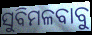
ସୁବିମଳବାବୁ